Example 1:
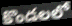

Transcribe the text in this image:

కొండలలో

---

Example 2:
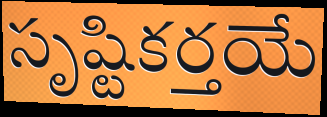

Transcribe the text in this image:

సృష్టికర్తయే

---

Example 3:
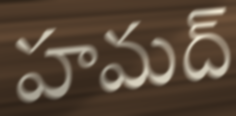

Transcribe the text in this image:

హమద్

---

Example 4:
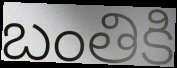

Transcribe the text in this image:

బంతికి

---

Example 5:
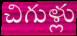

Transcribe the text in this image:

చిగుళ్లు